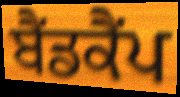
ਬੈਂਡਕੈਂਪ